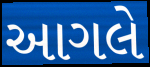
આગલે